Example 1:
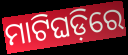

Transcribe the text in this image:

ମାଟିଘଡ଼ିରେ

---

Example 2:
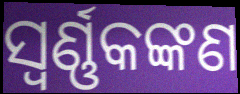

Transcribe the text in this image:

ସ୍ୱର୍ଣ୍ଣକଙ୍କଣ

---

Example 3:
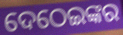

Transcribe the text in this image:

ଦେଠେଇଙ୍କର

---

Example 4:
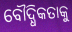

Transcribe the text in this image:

ବୌଦ୍ଧିକତାକୁ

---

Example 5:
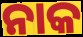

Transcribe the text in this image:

ନାକ